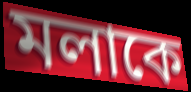
মলাকে